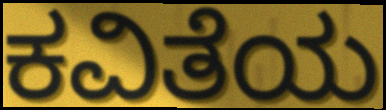
ಕವಿತೆಯ